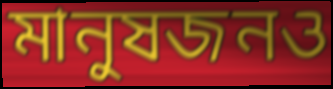
মানুষজনও